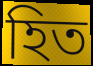
হিত